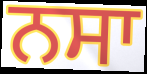
ਨਸਾ